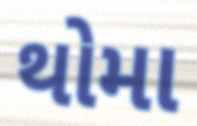
થોમા